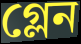
গ্লেন